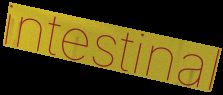
intestinal